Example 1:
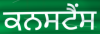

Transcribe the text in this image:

ਕਨਸਟੈਂਸ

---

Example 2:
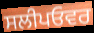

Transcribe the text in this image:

ਸਲੀਪਓਵਰ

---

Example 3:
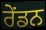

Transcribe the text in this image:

ਰੇਂਡਨ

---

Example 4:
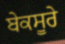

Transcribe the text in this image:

ਬੇਕਸੂਰੇ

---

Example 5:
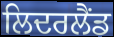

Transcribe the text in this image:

ਲਿਦਰਲੈਂਡ